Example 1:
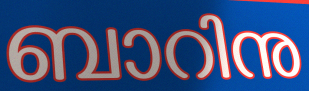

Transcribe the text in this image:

ബാറിനു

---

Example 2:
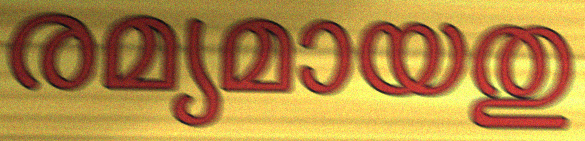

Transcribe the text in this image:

രമ്യമായതു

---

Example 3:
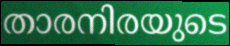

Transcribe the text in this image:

താരനിരയുടെ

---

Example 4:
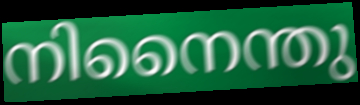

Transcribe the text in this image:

നിനൈന്തു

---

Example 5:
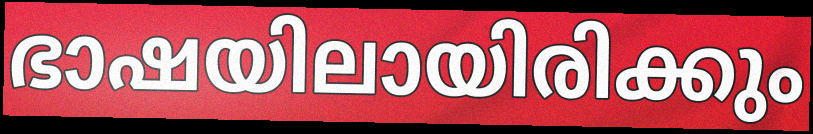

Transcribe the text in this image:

ഭാഷയിലായിരിക്കും